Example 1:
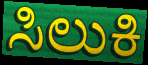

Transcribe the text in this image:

ಸಿಲುಕಿ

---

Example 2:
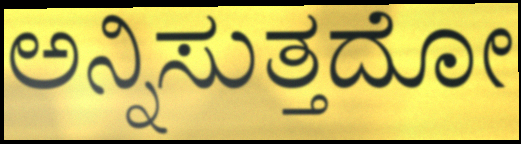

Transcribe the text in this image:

ಅನ್ನಿಸುತ್ತದೋ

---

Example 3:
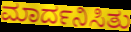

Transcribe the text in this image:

ಮಾರ್ದನಿಸಿತು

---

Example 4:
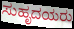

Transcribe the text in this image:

ಸುಹೃದಯರು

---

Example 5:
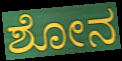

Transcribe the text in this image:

ಶೋನ